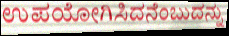
ಉಪಯೋಗಿಸಿದನೆಂಬುದನ್ನು